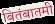
बितंबातमी